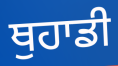
ਥੁਹਾਡੀ